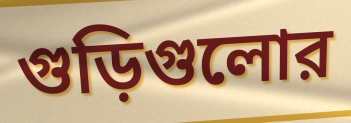
গুড়িগুলোর